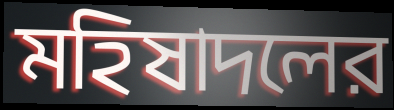
মহিষাদলের